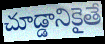
చూడ్డానికైతే